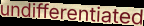
undifferentiated